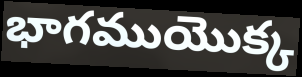
భాగముయొక్క